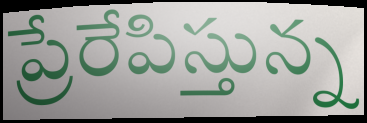
ప్రేరేపిస్తున్న